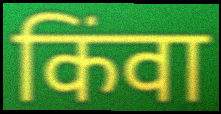
किंवा